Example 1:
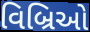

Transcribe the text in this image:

વિબ્રિઓ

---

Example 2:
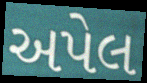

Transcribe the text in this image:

અપેલ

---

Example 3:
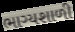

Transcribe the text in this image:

ભાગ્યશાળી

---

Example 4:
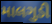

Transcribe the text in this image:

માલગુડી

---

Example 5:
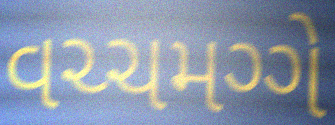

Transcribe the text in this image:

વચ્ચમગ્ગે